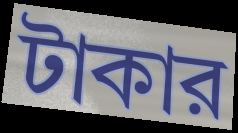
টাকার